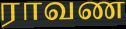
ராவண